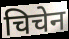
चिचेन